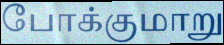
போக்குமாறு